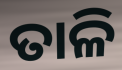
ତାଳି